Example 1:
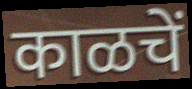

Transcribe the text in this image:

काळचें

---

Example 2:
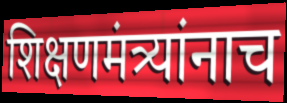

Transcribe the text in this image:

शिक्षणमंत्र्यांनाच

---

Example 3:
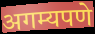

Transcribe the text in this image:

अगम्यपणे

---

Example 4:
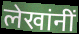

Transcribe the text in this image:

लेखांनीं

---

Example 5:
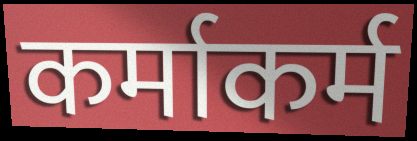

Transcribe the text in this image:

कर्माकर्म